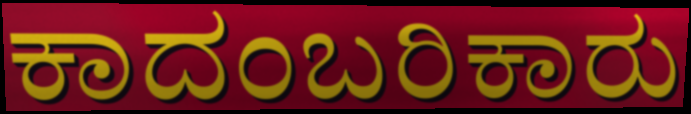
ಕಾದಂಬರಿಕಾರು